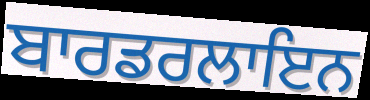
ਬਾਰਡਰਲਾਇਨ